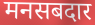
मनसबदार